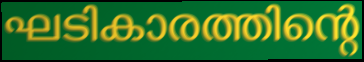
ഘടികാരത്തിന്റെ